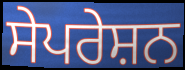
ਸੇਪਰੇਸ਼ਨ